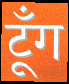
टूँग